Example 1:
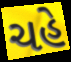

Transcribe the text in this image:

ચહે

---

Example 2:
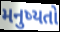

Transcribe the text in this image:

મનુષ્યતો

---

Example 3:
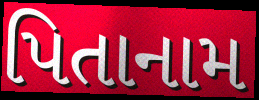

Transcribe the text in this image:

પિતાનામ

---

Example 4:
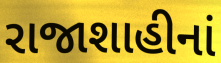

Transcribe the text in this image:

રાજાશાહીનાં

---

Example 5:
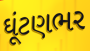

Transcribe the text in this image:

ઘૂંટણભર